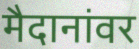
मैदानांवर